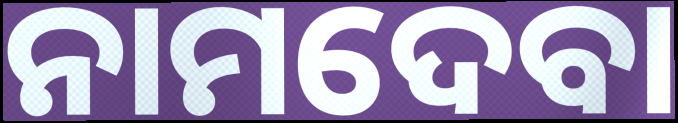
ନାମଦେବା